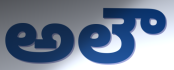
అలౌ